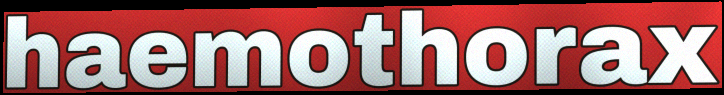
haemothorax